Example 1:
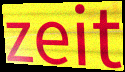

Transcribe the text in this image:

zeit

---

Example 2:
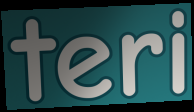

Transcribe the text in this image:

teri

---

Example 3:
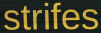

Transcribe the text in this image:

strifes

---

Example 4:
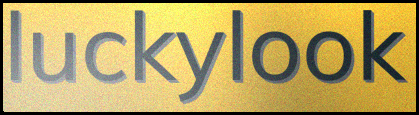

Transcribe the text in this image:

luckylook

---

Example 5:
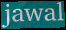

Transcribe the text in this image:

jawal